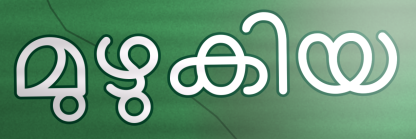
മുഴുകിയ